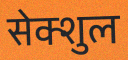
सेक्शुल